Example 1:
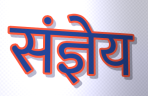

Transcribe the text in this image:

संज्ञेय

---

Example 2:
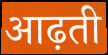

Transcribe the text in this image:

आढ़ती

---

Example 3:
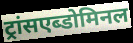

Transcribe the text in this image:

ट्रांसएब्डोमिनल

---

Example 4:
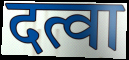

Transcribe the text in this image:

दत्वा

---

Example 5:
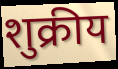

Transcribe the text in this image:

शुक्रीय